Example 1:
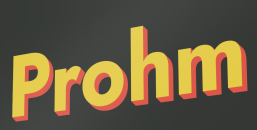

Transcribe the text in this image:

Prohm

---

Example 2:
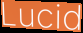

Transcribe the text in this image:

Lucid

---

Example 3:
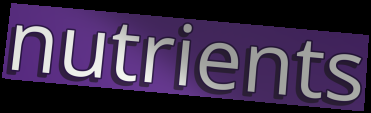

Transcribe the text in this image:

nutrients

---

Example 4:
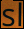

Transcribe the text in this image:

sl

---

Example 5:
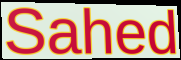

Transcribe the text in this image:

Sahed